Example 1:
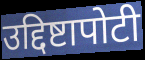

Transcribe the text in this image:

उद्दिष्टापोटी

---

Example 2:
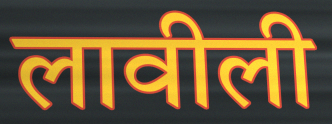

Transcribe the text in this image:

लावीली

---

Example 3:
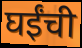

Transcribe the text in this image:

घईंची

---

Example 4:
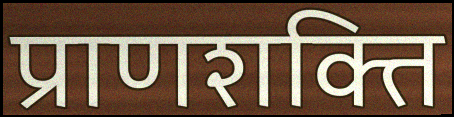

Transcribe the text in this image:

प्राणशक्ति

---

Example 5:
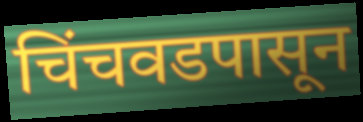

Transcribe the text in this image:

चिंचवडपासून